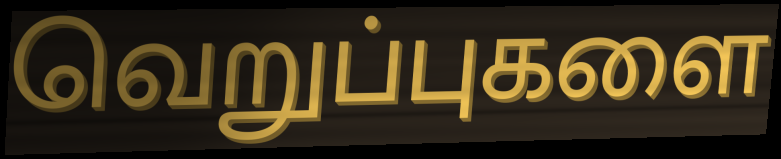
வெறுப்புகளை